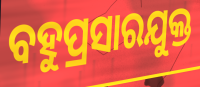
ବହୁପ୍ରସାରଯୁକ୍ତ